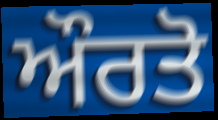
ਔਰਤੋ